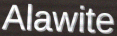
Alawite